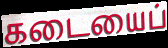
கடையைப்